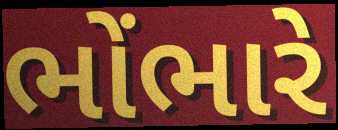
ભોંભારે